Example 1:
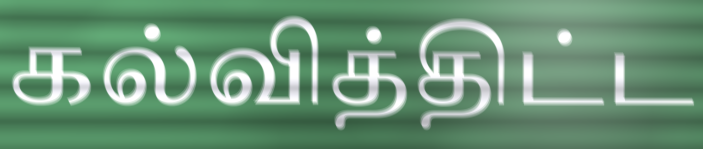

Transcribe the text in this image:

கல்வித்திட்ட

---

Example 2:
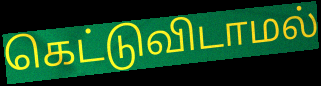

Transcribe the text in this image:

கெட்டுவிடாமல்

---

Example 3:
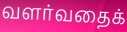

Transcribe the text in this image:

வளர்வதைக்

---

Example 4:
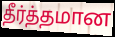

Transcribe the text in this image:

தீர்த்தமான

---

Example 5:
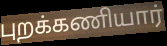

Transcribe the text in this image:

புறக்கணியார்